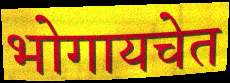
भोगायचेत